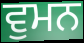
ਵੁਮਨ